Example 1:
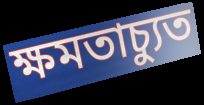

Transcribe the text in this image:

ক্ষমতাচ্যুত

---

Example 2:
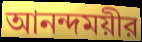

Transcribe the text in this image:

আনন্দময়ীর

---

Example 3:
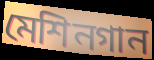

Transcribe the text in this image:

মেশিনগান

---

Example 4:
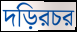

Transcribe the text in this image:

দড়িরচর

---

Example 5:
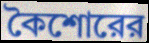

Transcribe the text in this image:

কৈশোরের